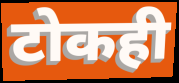
टोकही